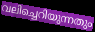
വലിച്ചെറിയുന്നതും